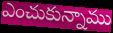
ఎంచుకున్నాము